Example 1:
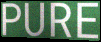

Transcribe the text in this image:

PURE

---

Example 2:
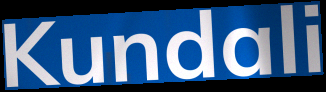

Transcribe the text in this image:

Kundali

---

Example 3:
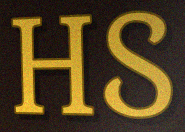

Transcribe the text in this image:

HS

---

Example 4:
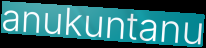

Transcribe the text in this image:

anukuntanu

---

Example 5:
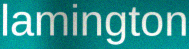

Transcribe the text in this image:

lamington